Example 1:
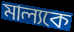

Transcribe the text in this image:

মাল্যকে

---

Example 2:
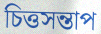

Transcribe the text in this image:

চিত্তসন্তাপ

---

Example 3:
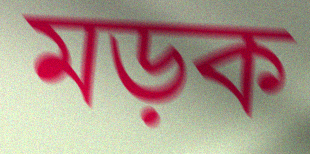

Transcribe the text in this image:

মড়ক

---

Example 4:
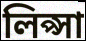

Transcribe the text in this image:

লিপ্সা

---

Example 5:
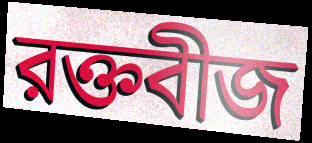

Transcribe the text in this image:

রক্তবীজ